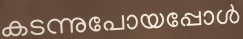
കടന്നുപോയപ്പോൾ